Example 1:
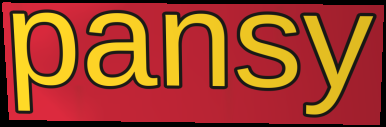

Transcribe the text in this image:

pansy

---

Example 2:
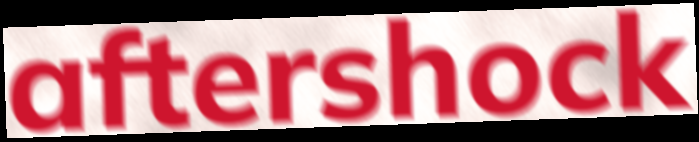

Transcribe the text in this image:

aftershock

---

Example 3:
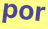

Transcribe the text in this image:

por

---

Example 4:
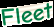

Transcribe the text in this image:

Fleet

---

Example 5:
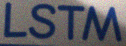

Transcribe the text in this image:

LSTM